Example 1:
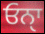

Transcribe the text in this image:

ਓਨਾੑ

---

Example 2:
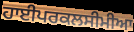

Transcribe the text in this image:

ਹਾਈਪਰਕਲਸੀਮੀਆ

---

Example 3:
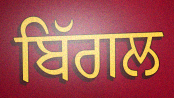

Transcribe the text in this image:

ਬਿੱਗਲ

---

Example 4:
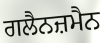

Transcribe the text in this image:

ਗਲੈਨਜ਼ਮੈਨ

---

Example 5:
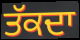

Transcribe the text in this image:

ਤੱਕਦਾ